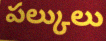
పల్కులు